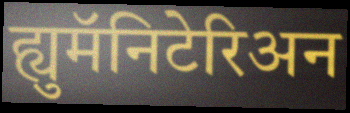
ह्युमॅनिटेरिअन